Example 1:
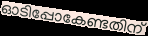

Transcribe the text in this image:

ഓടിപ്പോകേണ്ടതിന്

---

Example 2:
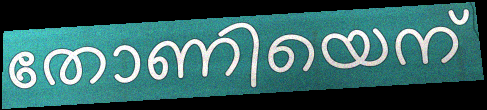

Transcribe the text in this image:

തോണിയെന്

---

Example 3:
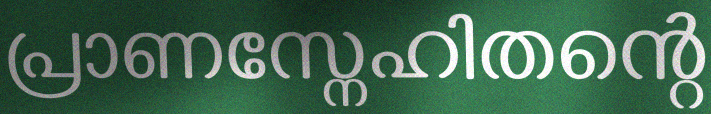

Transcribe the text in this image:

പ്രാണസ്നേഹിതന്റെ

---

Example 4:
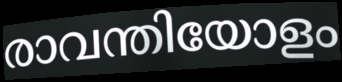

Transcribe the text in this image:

രാവന്തിയോളം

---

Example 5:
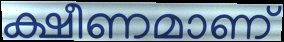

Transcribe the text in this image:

ക്ഷീണമാണ്